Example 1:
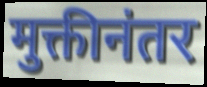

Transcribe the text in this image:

मुक्तीनंतर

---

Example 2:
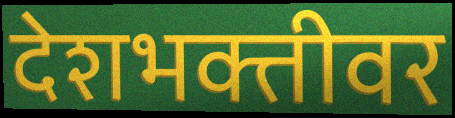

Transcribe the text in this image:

देशभक्तीवर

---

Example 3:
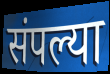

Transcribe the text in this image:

संपल्या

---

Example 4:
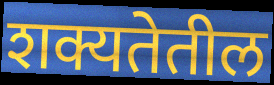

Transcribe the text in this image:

शक्यतेतील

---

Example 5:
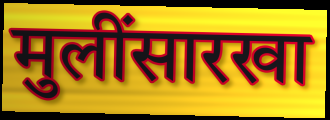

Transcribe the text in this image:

मुलींसारखा